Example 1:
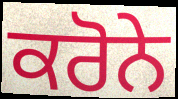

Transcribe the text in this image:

ਕਰੋਨੇ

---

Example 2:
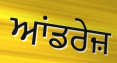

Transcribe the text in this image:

ਆਂਡਰੇਜ਼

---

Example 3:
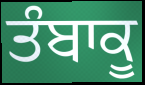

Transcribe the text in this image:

ਤੰਬਾਕੂ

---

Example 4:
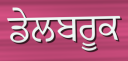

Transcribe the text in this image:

ਡੇਲਬਰੂਕ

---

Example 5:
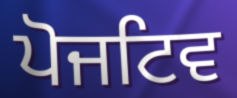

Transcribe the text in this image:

ਪੋਜਟਿਵ